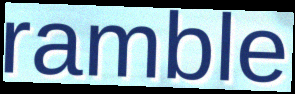
ramble